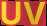
UV